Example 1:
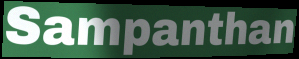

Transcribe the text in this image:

Sampanthan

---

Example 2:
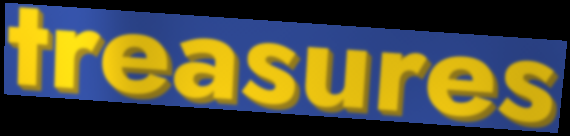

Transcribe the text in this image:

treasures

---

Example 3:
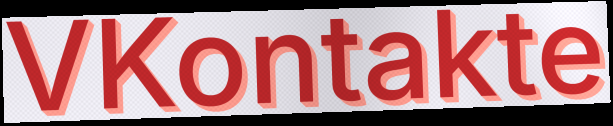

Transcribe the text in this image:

VKontakte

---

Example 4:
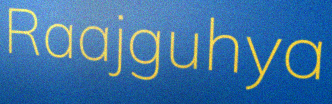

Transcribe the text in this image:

Raajguhya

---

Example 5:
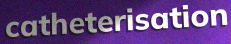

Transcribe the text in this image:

catheterisation